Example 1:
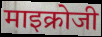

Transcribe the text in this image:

माइक्रोजी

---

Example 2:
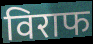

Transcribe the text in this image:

विराफ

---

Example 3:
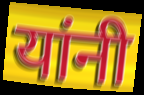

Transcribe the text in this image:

यांनी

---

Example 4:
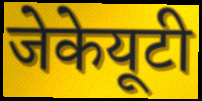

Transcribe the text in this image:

जेकेयूटी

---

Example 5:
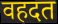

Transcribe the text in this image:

वहदत